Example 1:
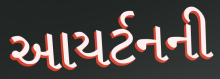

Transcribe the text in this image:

આયર્ટનની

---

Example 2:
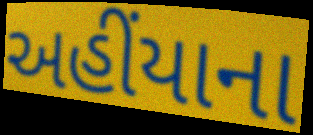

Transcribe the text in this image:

અહીંયાના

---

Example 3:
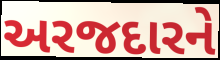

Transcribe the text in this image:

અરજદારને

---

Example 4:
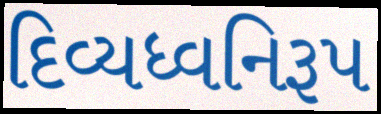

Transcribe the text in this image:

દિવ્યધ્વનિરૂપ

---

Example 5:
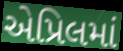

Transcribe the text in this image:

એપ્રિલમાં